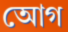
আেগ